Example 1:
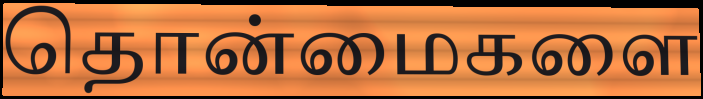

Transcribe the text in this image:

தொன்மைகளை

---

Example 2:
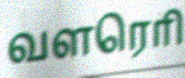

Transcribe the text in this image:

வளரெரி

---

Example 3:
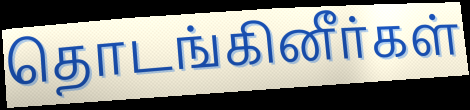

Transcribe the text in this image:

தொடங்கினீர்கள்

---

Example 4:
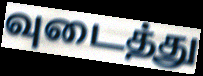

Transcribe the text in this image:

வுடைத்து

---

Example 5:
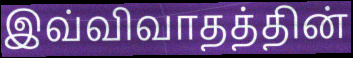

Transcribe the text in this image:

இவ்விவாதத்தின்